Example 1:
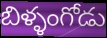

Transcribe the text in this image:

బిళ్ళంగోడు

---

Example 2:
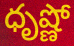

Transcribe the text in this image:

ధృష్ణో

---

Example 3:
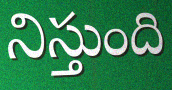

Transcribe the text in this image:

నిస్తుంది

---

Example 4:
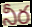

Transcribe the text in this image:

నీర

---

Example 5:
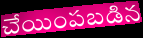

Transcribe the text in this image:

చేయింపబడిన